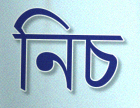
নিচ